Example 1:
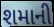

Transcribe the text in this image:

શમાની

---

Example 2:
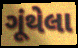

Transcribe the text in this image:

ગૂંથેલા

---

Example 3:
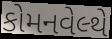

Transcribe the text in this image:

કોમનવેલ્થે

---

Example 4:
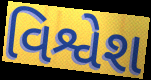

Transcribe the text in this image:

વિશ્વેશ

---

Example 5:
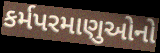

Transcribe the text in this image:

કર્મપરમાણુઓનો